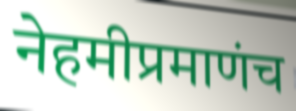
नेहमीप्रमाणंच